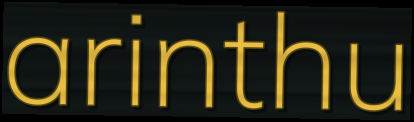
arinthu